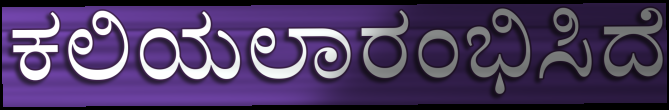
ಕಲಿಯಲಾರಂಭಿಸಿದೆ